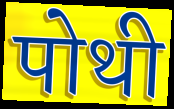
पोथी